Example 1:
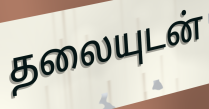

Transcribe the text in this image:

தலையுடன்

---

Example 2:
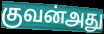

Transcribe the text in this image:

குவன்அது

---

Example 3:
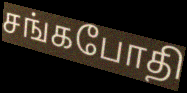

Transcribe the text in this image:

சங்கபோதி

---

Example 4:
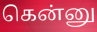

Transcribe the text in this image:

கென்னு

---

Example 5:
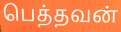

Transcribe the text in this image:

பெத்தவன்